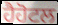
ਹੈਹੋਟਲ